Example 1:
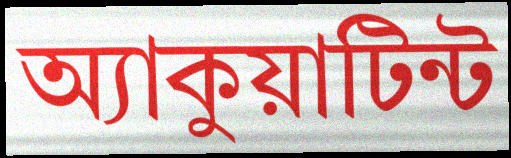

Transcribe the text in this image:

অ্যাকুয়াটিন্ট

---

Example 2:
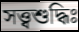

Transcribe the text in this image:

সত্ত্বশুদ্ধিঃ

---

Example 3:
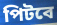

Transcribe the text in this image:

পিটবে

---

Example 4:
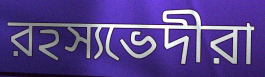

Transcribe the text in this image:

রহস্যভেদীরা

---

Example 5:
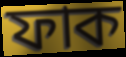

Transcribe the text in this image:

ফাক